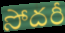
సోదరీ